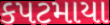
કપટમાયા